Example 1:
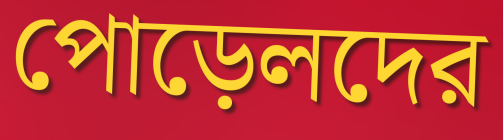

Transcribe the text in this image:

পোড়েলদের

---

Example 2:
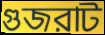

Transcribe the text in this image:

গুজরাট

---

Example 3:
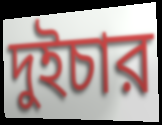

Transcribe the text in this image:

দুইচার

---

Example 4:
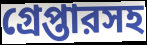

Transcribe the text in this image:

গ্রেপ্তারসহ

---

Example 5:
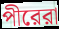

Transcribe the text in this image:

পীরেরা